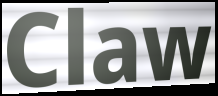
Claw